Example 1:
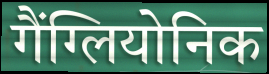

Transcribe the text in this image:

गैंग्लियोनिक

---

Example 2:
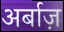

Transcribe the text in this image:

अर्बाज़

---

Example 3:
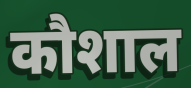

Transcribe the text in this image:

कौशाल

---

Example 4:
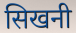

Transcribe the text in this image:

सिखनी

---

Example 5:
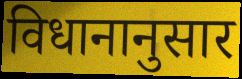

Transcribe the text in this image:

विधानानुसार